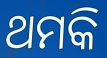
ଥମକି